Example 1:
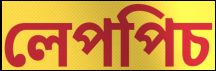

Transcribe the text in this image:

লেপপিচ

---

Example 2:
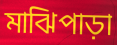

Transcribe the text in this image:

মাঝিপাড়া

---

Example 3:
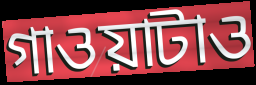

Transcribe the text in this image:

গাওয়াটাও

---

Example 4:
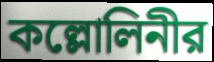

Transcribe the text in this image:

কল্লোলিনীর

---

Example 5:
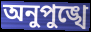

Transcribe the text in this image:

অনুপুঙ্খে